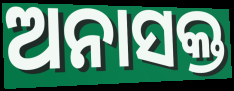
ଅନାସକ୍ତ